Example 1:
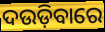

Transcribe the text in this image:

ଦଉଡ଼ିବାରେ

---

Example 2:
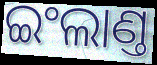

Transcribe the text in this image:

ଇଂଲାଣ୍ତ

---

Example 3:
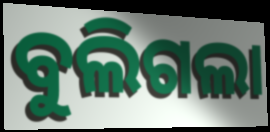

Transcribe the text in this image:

ବୁଲିଗଲା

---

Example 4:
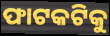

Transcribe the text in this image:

ଫାଟକଟିକୁ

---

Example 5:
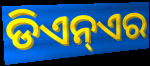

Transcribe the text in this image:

ଡିଏନ୍ଏର